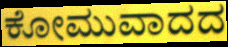
ಕೋಮುವಾದದ